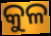
କୁଳ